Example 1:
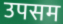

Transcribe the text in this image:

उपसम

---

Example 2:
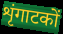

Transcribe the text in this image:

शृंगाटकों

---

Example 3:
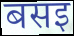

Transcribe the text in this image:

बसइ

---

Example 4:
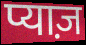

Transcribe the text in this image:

प्याज़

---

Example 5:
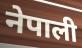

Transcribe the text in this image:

नेपाली